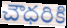
చౌధరికి